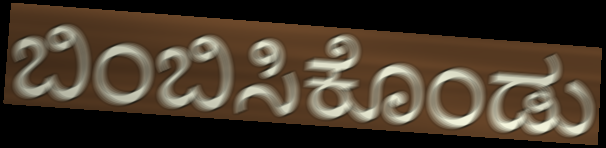
ಬಿಂಬಿಸಿಕೊಂಡು